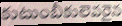
కుటుంబీకులెవరైన